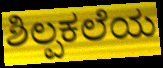
ಶಿಲ್ಪಕಲೆಯ